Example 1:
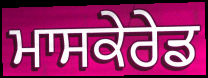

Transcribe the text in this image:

ਮਾਸਕੇਰੇਡ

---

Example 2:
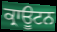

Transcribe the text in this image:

ਕ੍ਰਾਊਟਨ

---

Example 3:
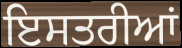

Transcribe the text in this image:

ਇਸਤਰੀਆਂ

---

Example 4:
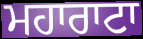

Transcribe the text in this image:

ਮਹਾਰਾਟਾ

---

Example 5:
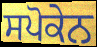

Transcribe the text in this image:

ਸਪੋਕੇਨ